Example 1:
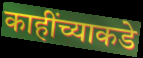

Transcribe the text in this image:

काहींच्याकडे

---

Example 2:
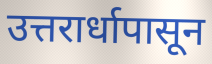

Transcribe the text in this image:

उत्तरार्धापासून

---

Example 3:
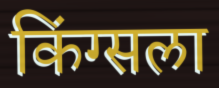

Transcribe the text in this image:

किंग्सला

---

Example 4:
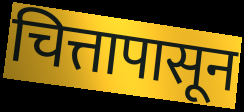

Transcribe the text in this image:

चित्तापासून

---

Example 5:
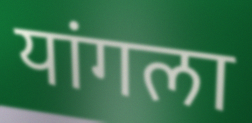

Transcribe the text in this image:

यांगला